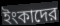
ইংকাদের